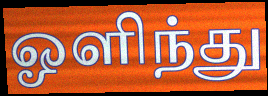
ஓளிந்து